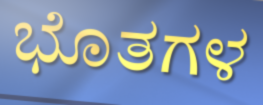
ಭೊತಗಳ